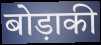
बोड़ाकी